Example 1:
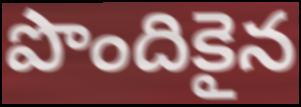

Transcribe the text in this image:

పొందికైన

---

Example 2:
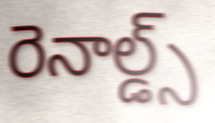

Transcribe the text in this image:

రెనాల్డ్స్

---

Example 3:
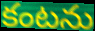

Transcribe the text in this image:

కంటను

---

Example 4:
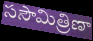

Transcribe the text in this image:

ససౌమిత్రిణా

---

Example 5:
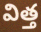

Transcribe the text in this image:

విత్త